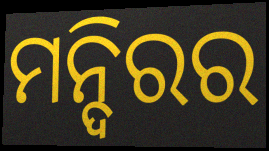
ମନ୍ଦିରର